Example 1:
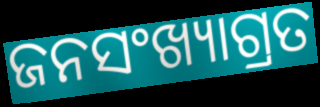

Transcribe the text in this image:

ଜନସଂଖ୍ୟାଗ୍ରତ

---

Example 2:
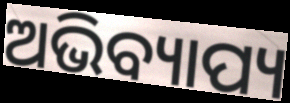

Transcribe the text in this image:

ଅଭିବ୍ୟାପ୍ୟ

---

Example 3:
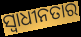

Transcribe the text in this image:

ସ୍ବାଧୀନତାର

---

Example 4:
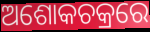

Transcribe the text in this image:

ଅଶୋକଚକ୍ରରେ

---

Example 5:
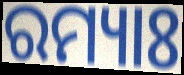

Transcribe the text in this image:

ରମ୍ୟାଃ